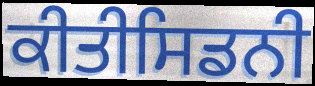
ਕੀਤੀਸਿਡਨੀ